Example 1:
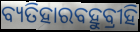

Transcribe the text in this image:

ବ୍ୟତିହାରବହୁବ୍ରୀହି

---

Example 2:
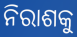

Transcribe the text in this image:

ନିରାଶକୁ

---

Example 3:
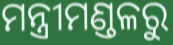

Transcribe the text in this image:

ମନ୍ତ୍ରୀମଣ୍ଡଳରୁ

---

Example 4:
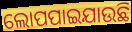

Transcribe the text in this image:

ଲୋପପାଇଯାଉଛି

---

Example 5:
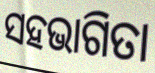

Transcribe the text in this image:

ସହଭାଗିତା